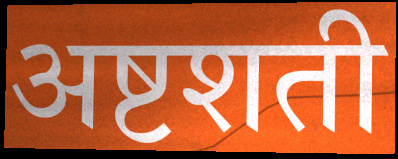
अष्टशती